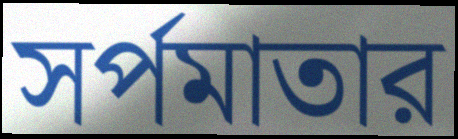
সর্পমাতার